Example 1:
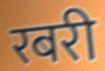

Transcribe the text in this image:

रबरी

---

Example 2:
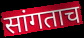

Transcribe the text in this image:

सांगताच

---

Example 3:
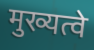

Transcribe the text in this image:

मुख्यत्वे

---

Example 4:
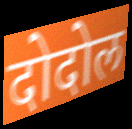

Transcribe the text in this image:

दोदोल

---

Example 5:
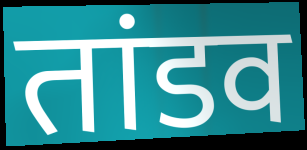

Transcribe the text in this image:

तांडव